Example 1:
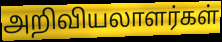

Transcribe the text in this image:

அறிவியலாளர்கள்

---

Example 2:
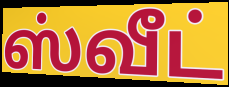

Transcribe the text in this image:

ஸ்வீட்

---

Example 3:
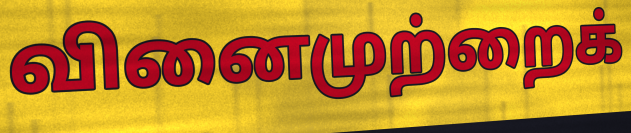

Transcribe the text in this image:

வினைமுற்றைக்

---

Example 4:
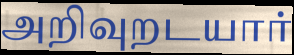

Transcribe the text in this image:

அறிவுறடயார்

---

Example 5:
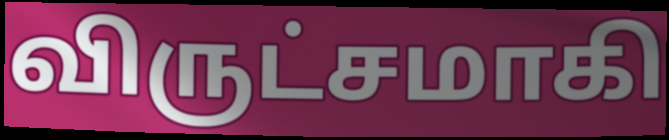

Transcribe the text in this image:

விருட்சமாகி